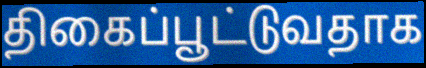
திகைப்பூட்டுவதாக